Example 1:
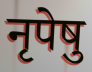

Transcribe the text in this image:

नृपेषु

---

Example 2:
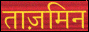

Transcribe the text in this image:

ताज़मिन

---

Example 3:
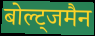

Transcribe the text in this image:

बोल्ट्जमैन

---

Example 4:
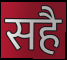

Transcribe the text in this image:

सहै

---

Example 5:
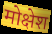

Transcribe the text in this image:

मोक्षेश